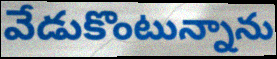
వేడుకొంటున్నాను